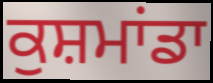
ਕੁਸ਼ਮਾਂਡਾ